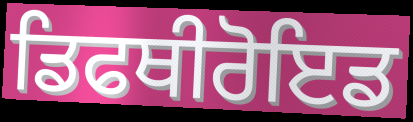
ਡਿਫਥੀਰੋਇਡ